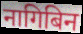
नागिबिन